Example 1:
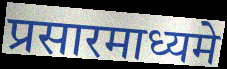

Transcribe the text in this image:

प्रसारमाध्यमे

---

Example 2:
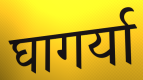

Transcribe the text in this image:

घागर्या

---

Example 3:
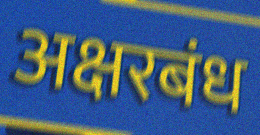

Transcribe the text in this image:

अक्षरबंध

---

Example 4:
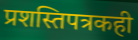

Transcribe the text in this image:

प्रशस्तिपत्रकही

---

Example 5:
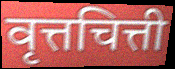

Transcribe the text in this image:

वृत्तचित्ती